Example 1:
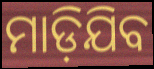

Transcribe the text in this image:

ମାଡ଼ିଯିବ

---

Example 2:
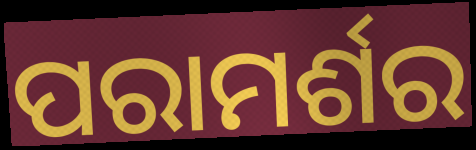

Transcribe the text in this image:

ପରାମର୍ଶର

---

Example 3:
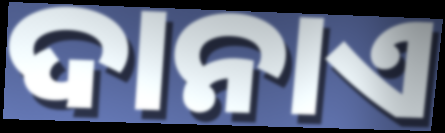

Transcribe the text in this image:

ଦାନାଏ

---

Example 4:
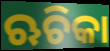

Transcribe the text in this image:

ଋଚିକା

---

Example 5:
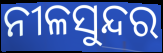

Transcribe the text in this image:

ନୀଳସୁନ୍ଦର